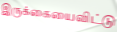
இருக்கையைவிட்டு